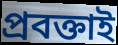
প্রবক্তাই